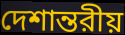
দেশান্তরীয়